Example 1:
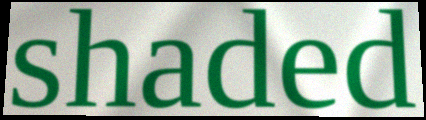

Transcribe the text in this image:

shaded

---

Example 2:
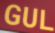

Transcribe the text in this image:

GUL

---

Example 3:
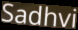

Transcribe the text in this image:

Sadhvi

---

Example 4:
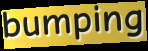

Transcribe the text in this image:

bumping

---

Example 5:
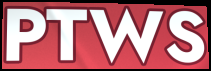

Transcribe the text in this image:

PTWS